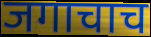
जगाचाच